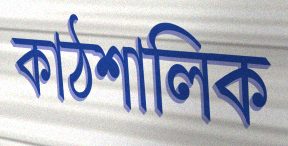
কাঠশালিক